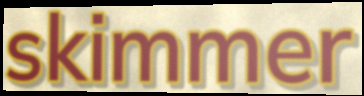
skimmer